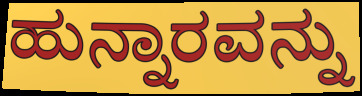
ಹುನ್ನಾರವನ್ನು